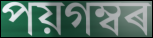
পয়গম্বৰ